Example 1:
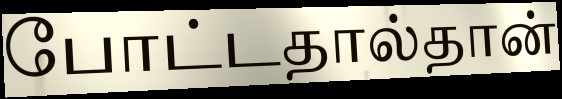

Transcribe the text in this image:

போட்டதால்தான்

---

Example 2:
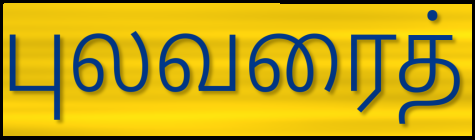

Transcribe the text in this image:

புலவரைத்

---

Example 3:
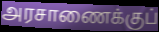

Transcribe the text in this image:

அரசாணைக்குப்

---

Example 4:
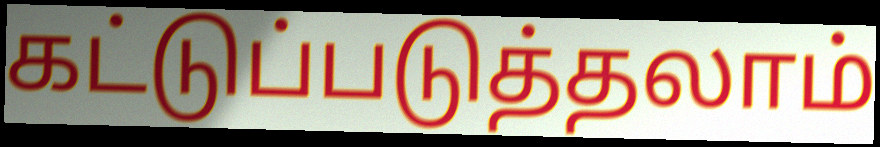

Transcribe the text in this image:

கட்டுப்படுத்தலாம்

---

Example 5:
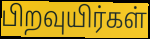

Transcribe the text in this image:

பிறவுயிர்கள்